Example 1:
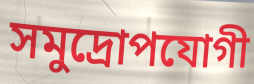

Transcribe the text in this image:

সমুদ্রোপযোগী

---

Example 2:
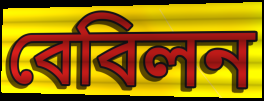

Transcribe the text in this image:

বেবিলন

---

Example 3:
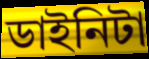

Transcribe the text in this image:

ডাইনিটা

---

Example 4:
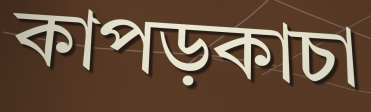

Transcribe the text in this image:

কাপড়কাচা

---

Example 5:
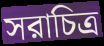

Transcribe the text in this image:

সরাচিত্র